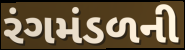
રંગમંડળની